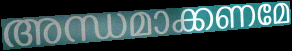
അന്ധമാക്കണമേ